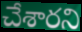
చేశారని